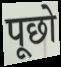
पूछो